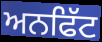
ਅਨਫਿੱਟ